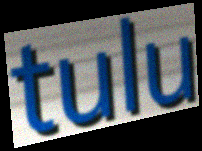
tulu